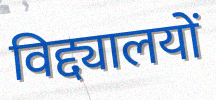
विद्द्यालयों